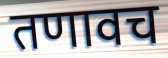
तणावच